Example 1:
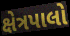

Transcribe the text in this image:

ક્ષેત્રપાલો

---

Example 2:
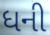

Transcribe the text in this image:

ધની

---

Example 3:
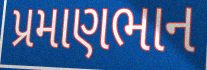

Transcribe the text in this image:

પ્રમાણભાન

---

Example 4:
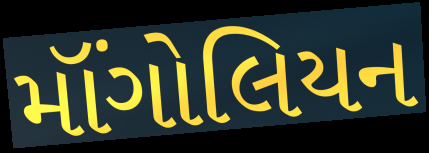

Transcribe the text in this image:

મૉંગોલિયન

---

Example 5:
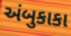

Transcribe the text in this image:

અંબુકાકા